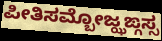
ಪೀತಿಸಮ್ಬೋಜ್ಝಙ್ಗಸ್ಸ